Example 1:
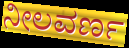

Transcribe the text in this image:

ನೀಲವರ್ಣ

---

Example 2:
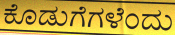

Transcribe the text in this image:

ಕೊಡುಗೆಗಳೆಂದು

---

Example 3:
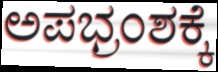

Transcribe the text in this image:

ಅಪಭ್ರಂಶಕ್ಕೆ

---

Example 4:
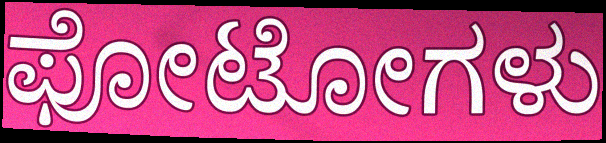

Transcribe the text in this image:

ಫೋಟೋಗಳು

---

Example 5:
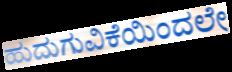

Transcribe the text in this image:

ಹುದುಗುವಿಕೆಯಿಂದಲೇ